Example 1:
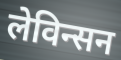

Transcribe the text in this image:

लेविन्सन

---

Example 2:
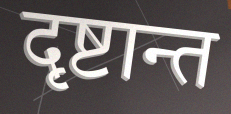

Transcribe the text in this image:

दृष्टान्त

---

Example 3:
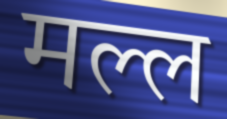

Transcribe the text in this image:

मल्ल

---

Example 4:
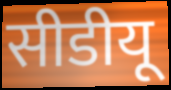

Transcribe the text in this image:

सीडीयू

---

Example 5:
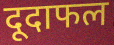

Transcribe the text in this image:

दूदाफल